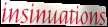
insinuations